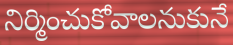
నిర్మించుకోవాలనుకునే